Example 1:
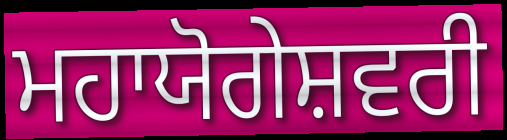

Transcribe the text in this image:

ਮਹਾਯੋਗੇਸ਼ਵਰੀ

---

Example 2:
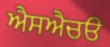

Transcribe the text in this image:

ਐਸਐਚੳ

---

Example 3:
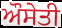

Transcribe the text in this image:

ਔਸੇਤੀ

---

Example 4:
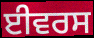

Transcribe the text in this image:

ਈਵਰਸ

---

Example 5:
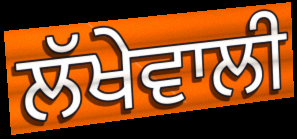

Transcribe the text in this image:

ਲੱਖੇਵਾਲੀ